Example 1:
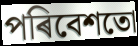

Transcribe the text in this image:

পৰিবেশতো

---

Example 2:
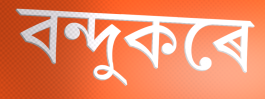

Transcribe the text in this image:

বন্দুকৰে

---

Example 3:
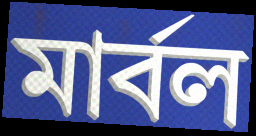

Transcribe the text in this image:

মাৰ্বল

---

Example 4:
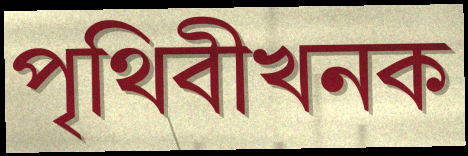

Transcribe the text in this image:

পৃথিবীখনক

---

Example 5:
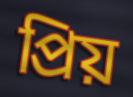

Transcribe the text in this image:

প্ৰিয়